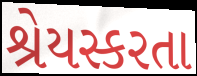
શ્રેયસ્કરતા